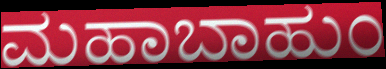
ಮಹಾಬಾಹುಂ